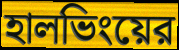
হালভিংয়ের